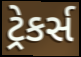
ટ્રેકર્સ